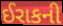
ઈરાકની